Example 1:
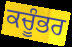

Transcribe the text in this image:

ਕਚੂੰਭਰ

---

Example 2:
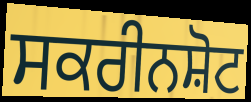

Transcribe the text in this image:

ਸਕਰੀਨਸ਼ੋਟ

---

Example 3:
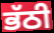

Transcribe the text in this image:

ਭੱਠੀ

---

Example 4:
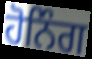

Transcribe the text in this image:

ਹੋਨਿੰਗ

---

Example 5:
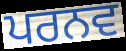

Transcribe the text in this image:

ਪਰਨਵ